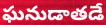
ఘనుడాతడే